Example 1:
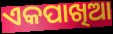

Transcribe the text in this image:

ଏକପାଖିଆ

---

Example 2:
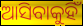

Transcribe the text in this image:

ଆସିବାକୁହିଁ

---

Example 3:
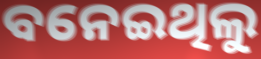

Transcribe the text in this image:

ବନେଇଥିଲୁ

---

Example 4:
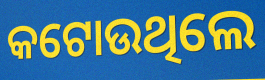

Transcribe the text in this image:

କଟୋଉଥିଲେ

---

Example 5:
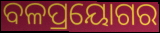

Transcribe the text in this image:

ବଳପ୍ରୟୋଗର